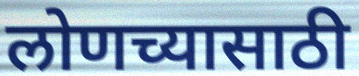
लोणच्यासाठी